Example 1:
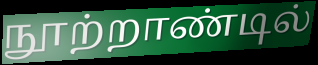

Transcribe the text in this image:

நூற்றாண்டில்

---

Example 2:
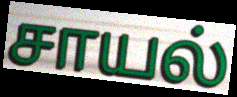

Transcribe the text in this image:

சாயல்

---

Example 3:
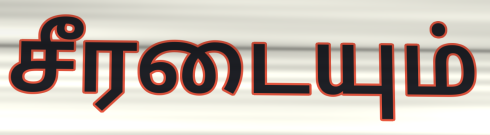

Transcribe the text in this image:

சீரடையும்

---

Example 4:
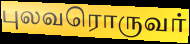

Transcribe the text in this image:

புலவரொருவர்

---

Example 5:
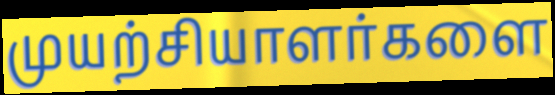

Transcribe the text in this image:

முயற்சியாளர்களை